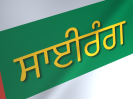
ਸਾਈਰੰਗ